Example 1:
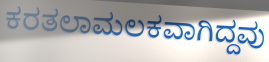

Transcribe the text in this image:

ಕರತಲಾಮಲಕವಾಗಿದ್ದವು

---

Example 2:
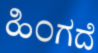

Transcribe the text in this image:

ಹಿಂಗದೆ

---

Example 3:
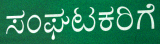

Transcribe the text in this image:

ಸಂಘಟಕರಿಗೆ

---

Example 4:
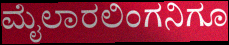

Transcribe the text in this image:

ಮೈಲಾರಲಿಂಗನಿಗೂ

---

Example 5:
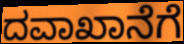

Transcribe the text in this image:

ದವಾಖಾನೆಗೆ